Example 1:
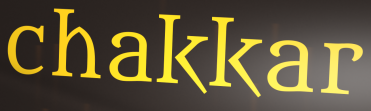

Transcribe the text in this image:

chakkar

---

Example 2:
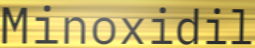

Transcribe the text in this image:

Minoxidil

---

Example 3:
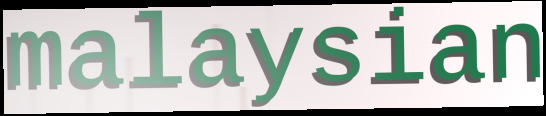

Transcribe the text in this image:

malaysian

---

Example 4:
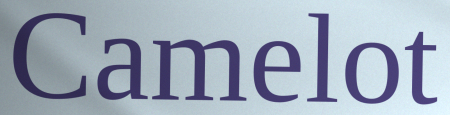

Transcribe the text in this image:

Camelot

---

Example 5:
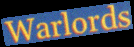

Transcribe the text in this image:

Warlords